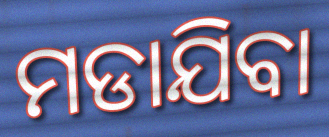
ମଡାଯିବା